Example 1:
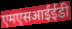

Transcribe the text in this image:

एमएसआईईडी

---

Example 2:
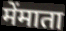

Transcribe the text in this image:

मेंमाता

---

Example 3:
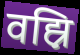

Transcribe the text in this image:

वह्नि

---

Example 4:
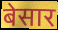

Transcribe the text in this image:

बेसार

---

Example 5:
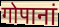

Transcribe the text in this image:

गोपानां